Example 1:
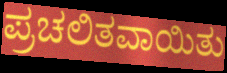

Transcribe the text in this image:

ಪ್ರಚಲಿತವಾಯಿತು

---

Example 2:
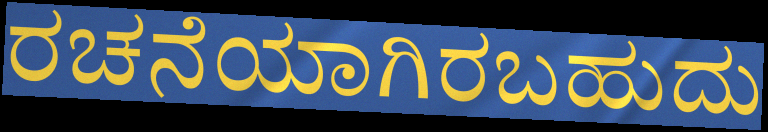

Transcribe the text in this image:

ರಚನೆಯಾಗಿರಬಹುದು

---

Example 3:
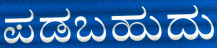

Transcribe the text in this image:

ಪಡಬಹುದು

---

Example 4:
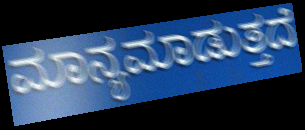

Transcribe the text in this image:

ಮಾನ್ಯಮಾಡುತ್ತದೆ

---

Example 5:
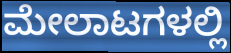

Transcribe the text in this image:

ಮೇಲಾಟಗಳಲ್ಲಿ